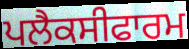
ਪਲੈਕਸੀਫਾਰਮ